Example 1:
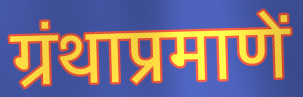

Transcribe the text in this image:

ग्रंथाप्रमाणें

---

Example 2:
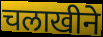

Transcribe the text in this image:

चलाखीने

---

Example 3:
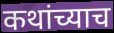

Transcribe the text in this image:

कथांच्याच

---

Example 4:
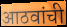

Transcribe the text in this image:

आठवांची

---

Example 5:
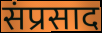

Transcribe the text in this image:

संप्रसाद